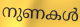
നുണകൾ